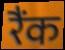
रैंक